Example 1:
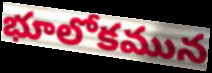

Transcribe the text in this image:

భూలోకమున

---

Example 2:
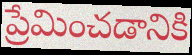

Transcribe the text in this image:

ప్రేమించడానికి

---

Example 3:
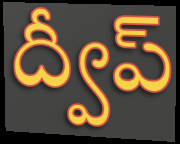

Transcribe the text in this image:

ద్వీప్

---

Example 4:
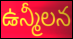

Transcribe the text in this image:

ఉన్మీలన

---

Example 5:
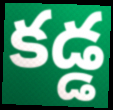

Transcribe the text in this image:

కడ్డ